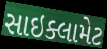
સાઇક્લામેટ